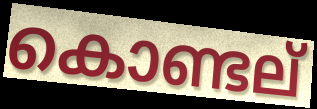
കൊണ്ടല്